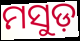
ମସୁଡ଼